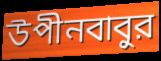
উপীনবাবুর